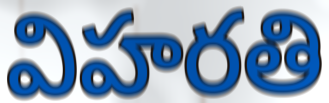
విహరతి